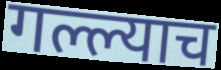
गल्ल्याच